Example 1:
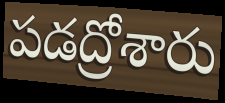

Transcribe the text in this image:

పడద్రోశారు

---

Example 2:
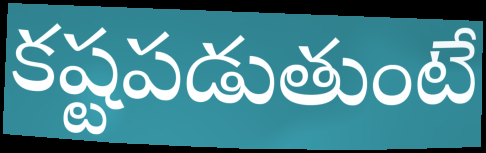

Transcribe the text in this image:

కష్టపడుతుంటే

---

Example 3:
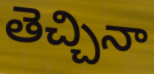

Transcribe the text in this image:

తెచ్చినా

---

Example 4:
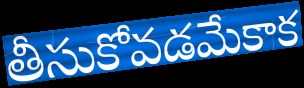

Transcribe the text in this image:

తీసుకోవడమేకాక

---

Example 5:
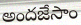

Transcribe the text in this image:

అందజేసాం